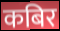
कबिर